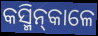
କସ୍ମିନ୍‍କାଳେ